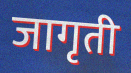
जागृती